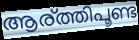
ആര്ത്തിപൂണ്ട